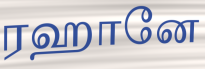
ரஹானே